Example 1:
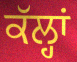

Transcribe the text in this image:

ਕੱਲ੍ਹਾਂ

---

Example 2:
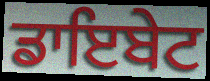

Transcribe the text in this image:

ਡਾਇਬੇਟ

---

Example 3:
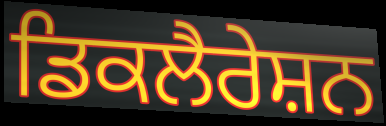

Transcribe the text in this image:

ਡਿਕਲੈਰੇਸ਼ਨ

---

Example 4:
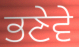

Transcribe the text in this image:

ਭਣੇਵੇ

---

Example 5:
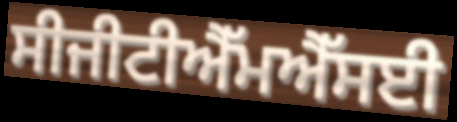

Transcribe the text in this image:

ਸੀਜੀਟੀਐੱਮਐੱਸਈ